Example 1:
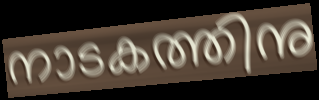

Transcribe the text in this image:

നാടകത്തിനു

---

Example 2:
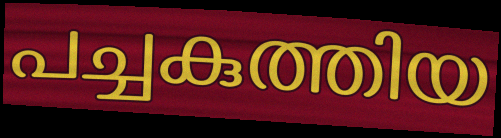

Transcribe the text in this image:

പച്ചകുത്തിയ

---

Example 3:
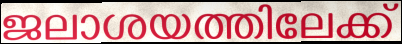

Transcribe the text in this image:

ജലാശയത്തിലേക്ക്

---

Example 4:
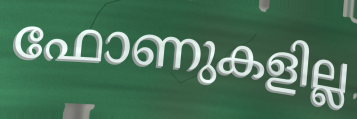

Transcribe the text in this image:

ഫോണുകളില്ല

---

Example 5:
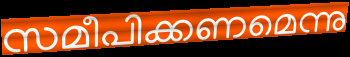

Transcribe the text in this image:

സമീപിക്കണമെന്നു